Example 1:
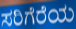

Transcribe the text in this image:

ಸರಿಗೆರೆಯ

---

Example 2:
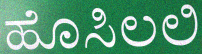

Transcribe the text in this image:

ಹೊಸಿಲಲಿ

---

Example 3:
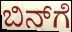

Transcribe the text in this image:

ಬಿನ್‌ಗೆ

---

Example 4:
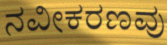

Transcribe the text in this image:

ನವೀಕರಣವು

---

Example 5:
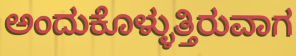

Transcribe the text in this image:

ಅಂದುಕೊಳ್ಳುತ್ತಿರುವಾಗ